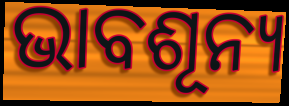
ଭାବଶୂନ୍ୟ